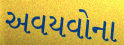
અવયવોના